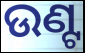
ଉଣ୍ଟ